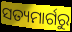
ସତ୍ୟମାର୍ଗରୁ